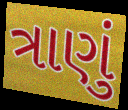
ત્રાણું